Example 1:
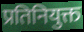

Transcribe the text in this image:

प्रतिनियुक्त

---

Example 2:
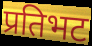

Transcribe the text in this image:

प्रतिभट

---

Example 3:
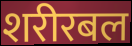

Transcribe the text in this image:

शरीरबल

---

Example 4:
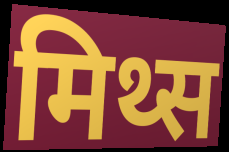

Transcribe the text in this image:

मिथ्स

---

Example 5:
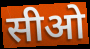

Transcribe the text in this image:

सीओ